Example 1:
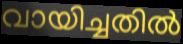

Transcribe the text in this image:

വായിച്ചതിൽ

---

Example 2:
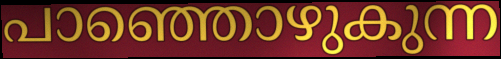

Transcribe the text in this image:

പാഞ്ഞൊഴുകുന്ന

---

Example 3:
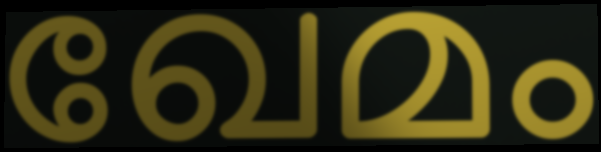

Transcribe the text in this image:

ഖേമം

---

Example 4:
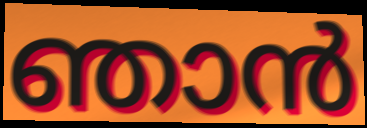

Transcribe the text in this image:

ഞാൻ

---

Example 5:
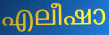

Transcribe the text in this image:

എലീഷാ